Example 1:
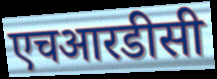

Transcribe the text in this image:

एचआरडीसी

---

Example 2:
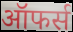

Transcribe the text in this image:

ऑफर्स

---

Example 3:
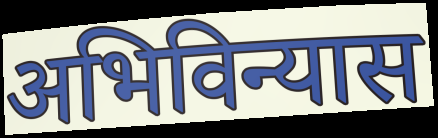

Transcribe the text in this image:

अभिविन्यास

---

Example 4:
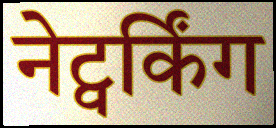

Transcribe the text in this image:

नेट्वर्किंग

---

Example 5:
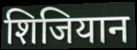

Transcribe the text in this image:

शिजियान